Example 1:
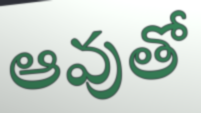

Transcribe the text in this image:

ఆవుతో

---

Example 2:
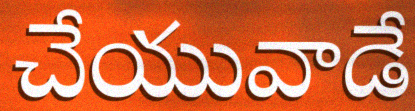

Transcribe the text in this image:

చేయువాడే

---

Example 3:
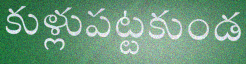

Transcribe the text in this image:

కుళ్లుపట్టకుండ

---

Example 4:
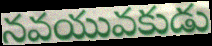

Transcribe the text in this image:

నవయువకుడు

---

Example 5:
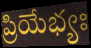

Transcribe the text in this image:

ప్రియేభ్యః